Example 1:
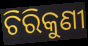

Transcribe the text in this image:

ଚିରିକୁଣୀ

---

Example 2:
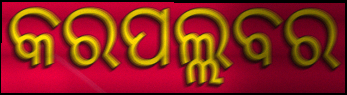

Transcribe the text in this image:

କରପଲ୍ଲବର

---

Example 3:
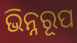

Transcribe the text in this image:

ଭିନ୍ନରୂପ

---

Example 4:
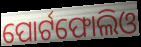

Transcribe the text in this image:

ପୋର୍ଟଫୋଲିଓ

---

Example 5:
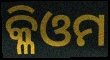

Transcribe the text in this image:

କ୍ଳିଓମ